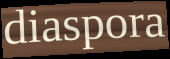
diaspora